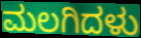
ಮಲಗಿದಳು